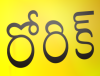
రోరిక్